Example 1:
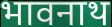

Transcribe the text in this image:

भावनाथ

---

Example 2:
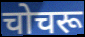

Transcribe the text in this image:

चोचरू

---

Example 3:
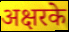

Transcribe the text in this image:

अक्षरके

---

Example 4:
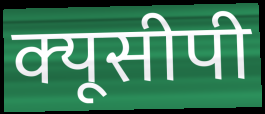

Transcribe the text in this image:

क्यूसीपी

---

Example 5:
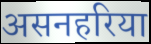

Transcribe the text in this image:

असनहरिया